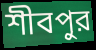
শীবপুর